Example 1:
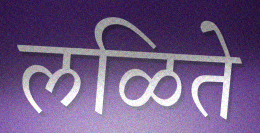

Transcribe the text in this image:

लळिते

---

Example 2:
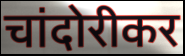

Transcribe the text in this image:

चांदोरीकर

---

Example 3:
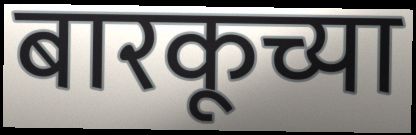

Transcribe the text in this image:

बारकूच्या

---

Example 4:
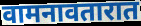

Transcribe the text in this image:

वामनावतारात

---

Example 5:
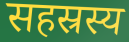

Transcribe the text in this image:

सहस्रस्य